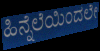
ಹಿನ್ನೆಲೆಯಿಂದಲೇ